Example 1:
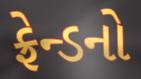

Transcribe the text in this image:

ફ્રેન્ડનો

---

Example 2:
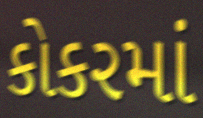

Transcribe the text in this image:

કોકરમાં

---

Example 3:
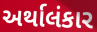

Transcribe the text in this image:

અર્થાલંકાર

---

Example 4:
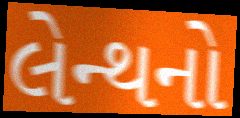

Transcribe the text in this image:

લેન્થનો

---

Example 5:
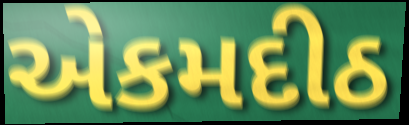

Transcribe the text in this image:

એકમદીઠ